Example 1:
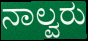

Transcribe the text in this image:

ನಾಲ್ವರು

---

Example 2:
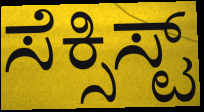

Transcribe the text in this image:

ಸೆಕ್ಸಿಸ್ಟ್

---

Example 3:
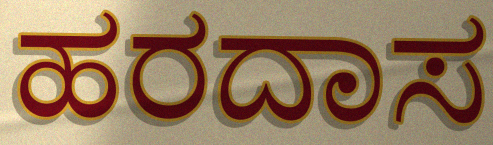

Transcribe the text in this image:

ಹರದಾಸ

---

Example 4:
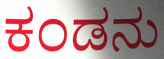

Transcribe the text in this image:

ಕಂಡನು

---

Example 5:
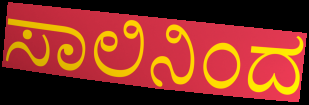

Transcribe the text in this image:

ಸಾಲಿನಿಂದ